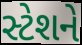
સ્ટેશને